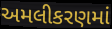
અમલીકરણમાં